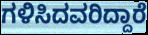
ಗಳಿಸಿದವರಿದ್ದಾರೆ